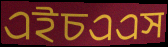
এইচএএস